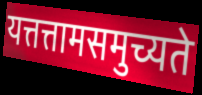
यत्तत्तामसमुच्यते